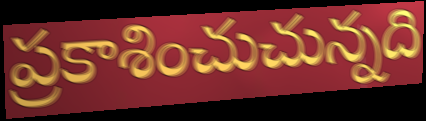
ప్రకాశించుచున్నది